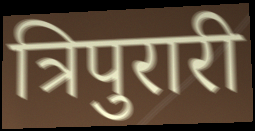
त्रिपुरारी